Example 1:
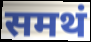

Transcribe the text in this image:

समथं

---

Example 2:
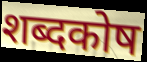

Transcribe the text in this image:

शब्दकोष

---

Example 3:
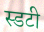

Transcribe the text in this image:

स्डटी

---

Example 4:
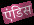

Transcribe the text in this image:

एंडिस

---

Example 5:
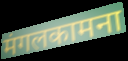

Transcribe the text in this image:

मंगलकामना